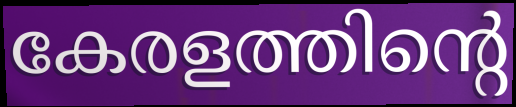
കേരളത്തിന്റെ